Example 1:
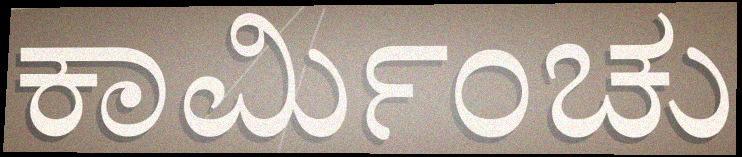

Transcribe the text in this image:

ಕಾರ್ಮಿಂಚು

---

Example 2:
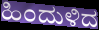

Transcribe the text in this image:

ಹಿಂದುಳಿದ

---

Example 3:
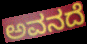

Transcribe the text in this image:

ಅವನದೆ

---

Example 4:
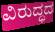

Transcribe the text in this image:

ವಿರುದ್ಧದ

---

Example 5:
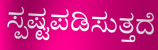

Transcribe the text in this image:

ಸ್ಪಷ್ಟಪಡಿಸುತ್ತದೆ